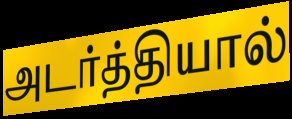
அடர்த்தியால்